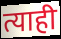
त्याही